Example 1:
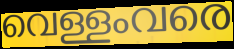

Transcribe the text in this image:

വെള്ളംവരെ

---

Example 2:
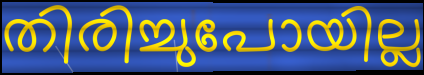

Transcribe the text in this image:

തിരിച്ചുപോയില്ല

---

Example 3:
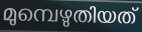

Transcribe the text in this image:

മുമ്പെഴുതിയത്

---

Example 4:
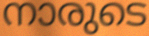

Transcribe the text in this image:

നാരുടെ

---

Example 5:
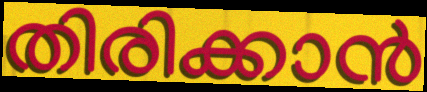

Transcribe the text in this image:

തിരിക്കാൻ